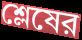
শ্লেষের